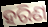
ହରିଣ